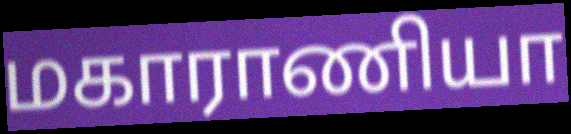
மகாராணியா